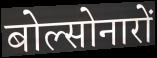
बोल्सोनारों